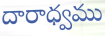
దారాధ్వము